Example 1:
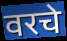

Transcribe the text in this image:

वरचे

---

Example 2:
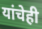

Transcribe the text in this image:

यांचेही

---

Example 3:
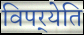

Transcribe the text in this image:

विपर्येति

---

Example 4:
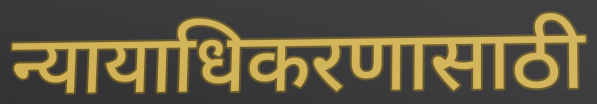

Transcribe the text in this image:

न्यायाधिकरणासाठी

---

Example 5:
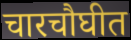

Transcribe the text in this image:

चारचौघीत